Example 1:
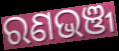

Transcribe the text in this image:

ରଣଭଞ୍ଜ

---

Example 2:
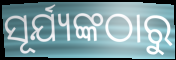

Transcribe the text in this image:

ସୂର୍ଯ୍ୟଙ୍କଠାରୁ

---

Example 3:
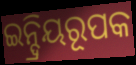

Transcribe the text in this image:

ଇନ୍ଦ୍ରିୟରୂପକ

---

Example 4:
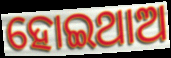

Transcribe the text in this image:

ହୋଇଥାଅ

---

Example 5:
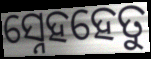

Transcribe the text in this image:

ସ୍ନେହହେତୁ